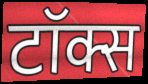
टॉक्स